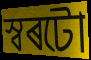
স্বৰটো